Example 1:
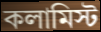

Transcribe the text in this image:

কলামিস্ট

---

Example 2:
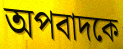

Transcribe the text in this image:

অপবাদকে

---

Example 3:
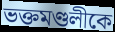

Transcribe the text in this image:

ভক্তমণ্ডলীকে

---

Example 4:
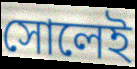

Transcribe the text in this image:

সোলেই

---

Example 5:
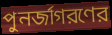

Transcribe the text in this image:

পুনর্জাগরণের